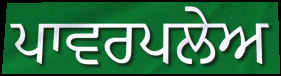
ਪਾਵਰਪਲੇਅ